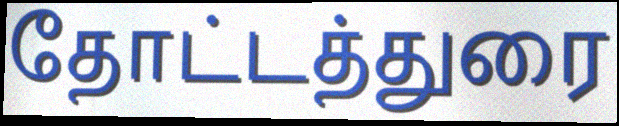
தோட்டத்துரை